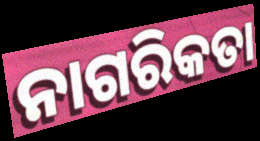
ନାଗରିକତା